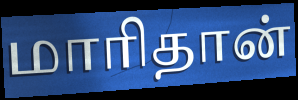
மாரிதான்